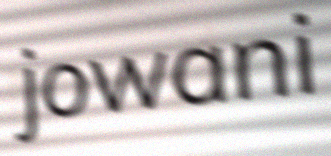
jowani